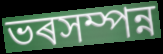
ভৰসম্পন্ন